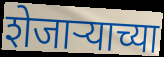
शेजार्‍याच्या